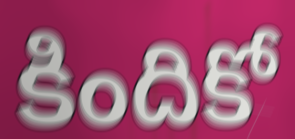
కిందికో